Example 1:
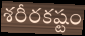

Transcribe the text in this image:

శరీరకష్టం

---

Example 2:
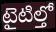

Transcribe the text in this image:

టైటిల్తో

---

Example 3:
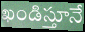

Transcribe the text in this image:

ఖండిస్తూనే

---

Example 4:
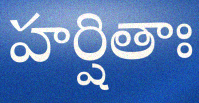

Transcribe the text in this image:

హర్షితాః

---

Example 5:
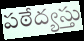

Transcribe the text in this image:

పఠేద్యస్తు